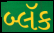
બ્લૅક